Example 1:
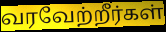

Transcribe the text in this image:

வரவேற்றீர்கள்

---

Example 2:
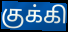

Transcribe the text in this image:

குக்கி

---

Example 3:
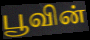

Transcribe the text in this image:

பூவின்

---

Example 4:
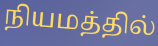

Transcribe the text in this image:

நியமத்தில்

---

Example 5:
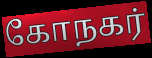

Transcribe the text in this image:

கோநகர்